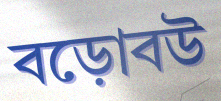
বড়োবউ